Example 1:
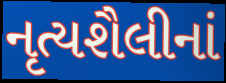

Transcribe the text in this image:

નૃત્યશૈલીનાં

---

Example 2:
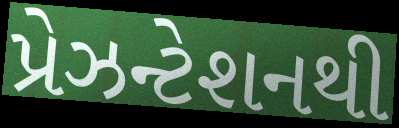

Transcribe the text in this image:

પ્રેઝન્ટેશનથી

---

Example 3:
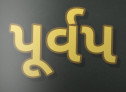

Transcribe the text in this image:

પૂર્વપ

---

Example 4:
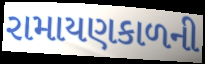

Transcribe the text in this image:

રામાયણકાળની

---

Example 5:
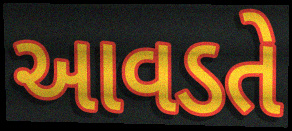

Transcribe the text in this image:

આવડતે